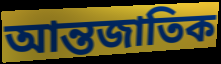
আন্তজাতিক